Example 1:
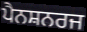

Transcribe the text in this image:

ਪੈਨਸ਼ਨਰਜ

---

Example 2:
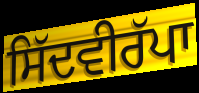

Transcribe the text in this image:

ਸਿੱਦਵੀਰੱਪਾ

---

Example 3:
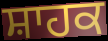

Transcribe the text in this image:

ਸ਼ਾਹਕ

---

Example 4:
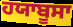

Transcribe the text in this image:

ਹਯਾਬੂਸਾ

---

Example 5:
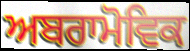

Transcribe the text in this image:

ਅਬਰਾਮੋਵਿਕ